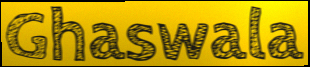
Ghaswala